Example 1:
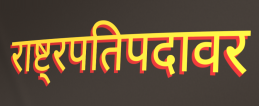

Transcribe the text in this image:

राष्ट्रपतिपदावर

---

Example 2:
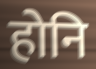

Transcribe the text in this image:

होनि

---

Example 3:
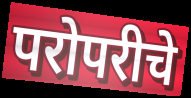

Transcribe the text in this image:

परोपरीचे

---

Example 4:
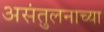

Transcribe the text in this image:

असंतुलनाच्या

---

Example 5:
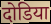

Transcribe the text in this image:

दोडिया